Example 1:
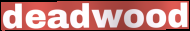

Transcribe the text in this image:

deadwood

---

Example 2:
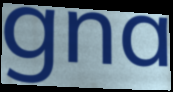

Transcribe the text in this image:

gna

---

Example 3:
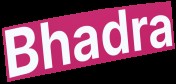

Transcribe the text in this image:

Bhadra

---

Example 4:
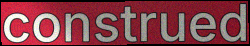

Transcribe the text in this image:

construed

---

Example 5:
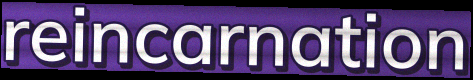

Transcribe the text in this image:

reincarnation